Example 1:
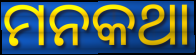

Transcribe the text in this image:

ମନକଥା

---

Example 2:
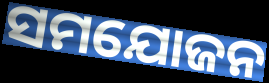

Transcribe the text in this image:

ସମଯୋଜନ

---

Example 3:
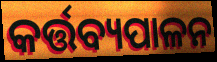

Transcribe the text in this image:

କର୍ତ୍ତବ୍ୟପାଳନ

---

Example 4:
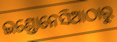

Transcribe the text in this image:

ଇଣ୍ଡୋନେସିଆଠାରୁ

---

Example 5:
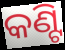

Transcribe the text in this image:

କଣ୍ଟି